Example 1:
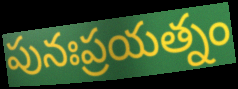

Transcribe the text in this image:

పునఃప్రయత్నం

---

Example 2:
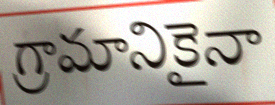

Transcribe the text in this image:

గ్రామానికైనా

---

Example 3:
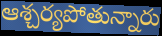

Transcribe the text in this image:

ఆశ్చర్యపోతున్నారు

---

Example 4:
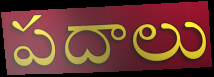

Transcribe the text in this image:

పదాలు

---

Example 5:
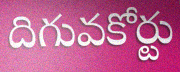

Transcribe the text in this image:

దిగువకోర్టు